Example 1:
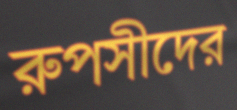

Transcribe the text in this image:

রুপসীদের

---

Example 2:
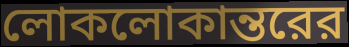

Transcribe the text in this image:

লোকলোকান্তরের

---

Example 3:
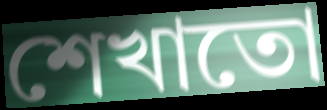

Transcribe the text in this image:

শেখাতো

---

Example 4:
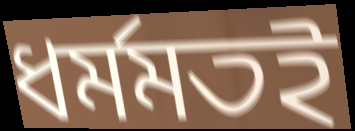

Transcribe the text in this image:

ধর্মমতই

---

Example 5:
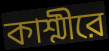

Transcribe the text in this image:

কাশ্মীরে